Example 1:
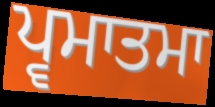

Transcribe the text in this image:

ਪ੍ਵਮਾਤਮਾ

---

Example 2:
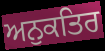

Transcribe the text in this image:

ਅਨੁਕਤਿਰ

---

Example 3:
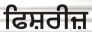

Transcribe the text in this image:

ਫਿਸ਼ਰੀਜ਼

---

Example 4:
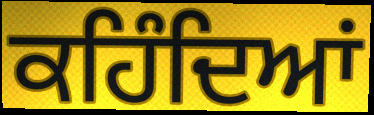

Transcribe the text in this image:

ਕਹਿੰਦਿਆਂ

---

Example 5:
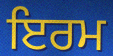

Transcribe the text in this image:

ਇਰਮ